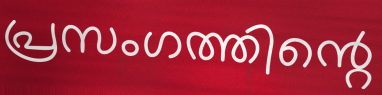
പ്രസംഗത്തിന്റെ